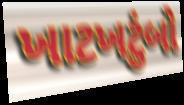
ખાટખટુંબો